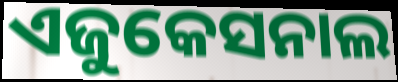
ଏଜୁକେସନାଲ